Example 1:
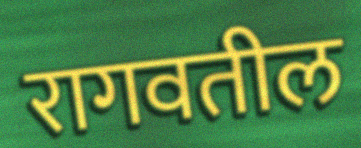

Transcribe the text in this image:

रागवतील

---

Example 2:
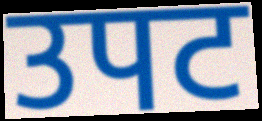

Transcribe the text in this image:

उपट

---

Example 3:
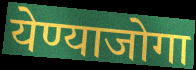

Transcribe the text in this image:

येण्याजोगा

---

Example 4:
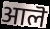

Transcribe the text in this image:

आलॆ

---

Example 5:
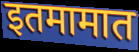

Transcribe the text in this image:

इतमामात